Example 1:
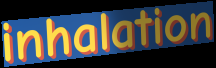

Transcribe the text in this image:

inhalation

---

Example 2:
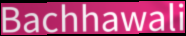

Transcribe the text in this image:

Bachhawali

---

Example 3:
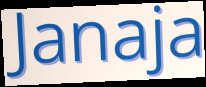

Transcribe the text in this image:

Janaja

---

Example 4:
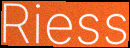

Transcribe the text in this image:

Riess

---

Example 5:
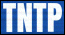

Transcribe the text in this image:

TNTP